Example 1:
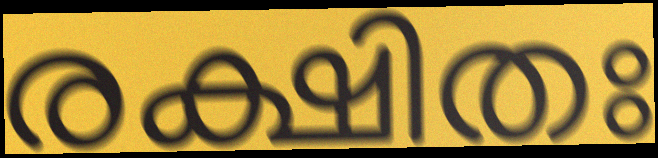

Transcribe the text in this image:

രക്ഷിതഃ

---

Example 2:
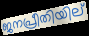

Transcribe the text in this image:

ജനപ്രീതിയില്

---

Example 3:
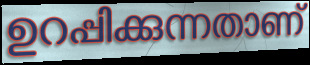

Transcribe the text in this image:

ഉറപ്പിക്കുന്നതാണ്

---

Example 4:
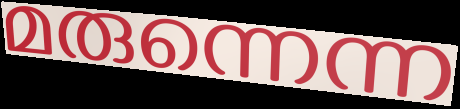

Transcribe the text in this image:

മരുന്നെന്ന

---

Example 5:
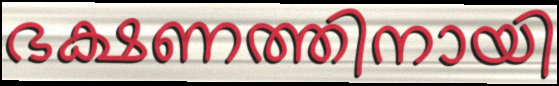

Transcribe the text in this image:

ഭക്ഷണത്തിനായി